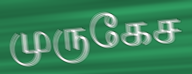
முருகேச